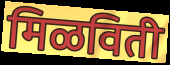
मिळविती